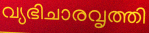
വ്യഭിചാരവൃത്തി